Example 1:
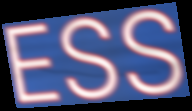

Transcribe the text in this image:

ESS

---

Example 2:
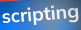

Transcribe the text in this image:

scripting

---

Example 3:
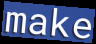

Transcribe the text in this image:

make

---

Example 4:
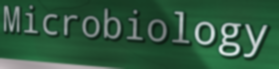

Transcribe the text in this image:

Microbiology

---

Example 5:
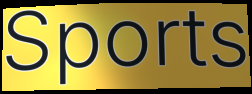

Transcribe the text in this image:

Sports